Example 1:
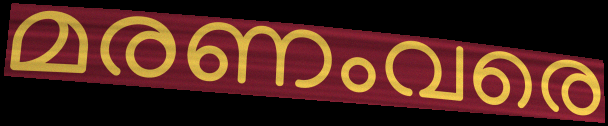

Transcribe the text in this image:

മരണംവരെ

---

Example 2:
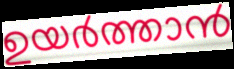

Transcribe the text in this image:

ഉയർത്താൻ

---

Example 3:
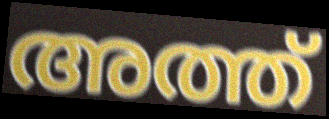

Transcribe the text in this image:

അത്ത്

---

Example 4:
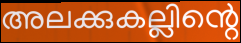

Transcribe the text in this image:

അലക്കുകല്ലിന്റെ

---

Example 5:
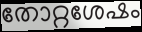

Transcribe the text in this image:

തോറ്റശേഷം